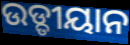
ଉଡ୍ଡୀୟାନ